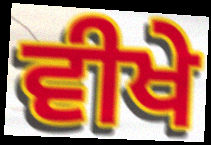
ਵੀਖੇ